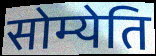
सोम्येति